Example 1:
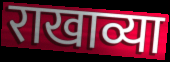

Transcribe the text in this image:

राखाव्या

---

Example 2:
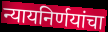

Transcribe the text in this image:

न्यायनिर्णयांचा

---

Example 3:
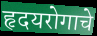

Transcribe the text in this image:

हृदयरोगाचे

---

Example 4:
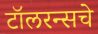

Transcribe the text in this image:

टॉलरन्सचे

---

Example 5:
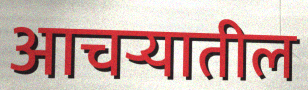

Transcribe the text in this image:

आचऱ्यातील